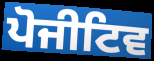
ਪੋਜੀਟਿਵ